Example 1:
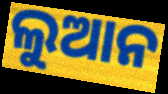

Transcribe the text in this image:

ଲୁଆନ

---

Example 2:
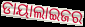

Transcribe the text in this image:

ଡାୟାଲାଇଜର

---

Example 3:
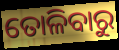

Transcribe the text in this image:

ତୋଳିବାରୁ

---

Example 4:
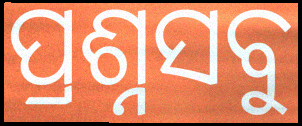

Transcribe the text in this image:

ପ୍ରଶ୍ନସବୁ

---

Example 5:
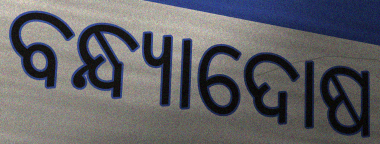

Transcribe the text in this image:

ବନ୍ଧ୍ୟାଦୋଷ